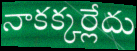
నాకక్కర్లేదు